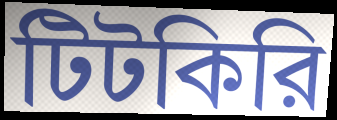
টিটকিরি